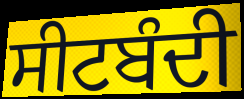
ਸੀਟਬੰਦੀ